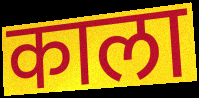
काला